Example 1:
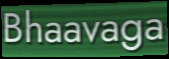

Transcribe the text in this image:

Bhaavaga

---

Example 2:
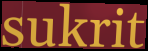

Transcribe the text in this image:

sukrit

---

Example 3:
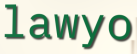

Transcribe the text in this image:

lawyo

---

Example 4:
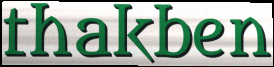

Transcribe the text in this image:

thakben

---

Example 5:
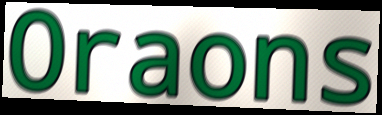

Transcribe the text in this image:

Oraons